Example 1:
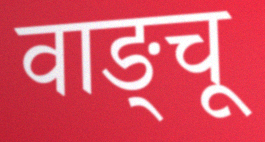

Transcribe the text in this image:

वाङ्चू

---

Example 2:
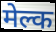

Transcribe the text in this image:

मेल्क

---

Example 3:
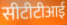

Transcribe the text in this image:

सीटीटीआई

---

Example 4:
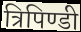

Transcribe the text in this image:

त्रिपिण्डी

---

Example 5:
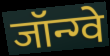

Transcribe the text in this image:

जॉन्ग्वे